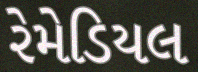
રેમેડિયલ